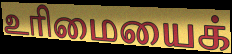
உரிமையைக்